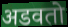
अडवतो